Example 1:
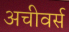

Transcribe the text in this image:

अचीवर्स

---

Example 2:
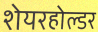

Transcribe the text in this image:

शेयरहोल्डर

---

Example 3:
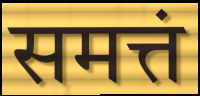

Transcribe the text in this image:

समत्तं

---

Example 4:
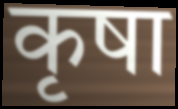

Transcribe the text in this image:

कृषा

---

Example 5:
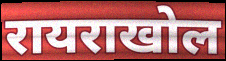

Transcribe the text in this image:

रायराखोल